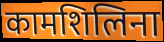
कामशिलिना